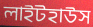
লাইটহাউস